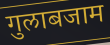
गुलाबजाम